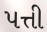
પત્તી